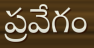
ప్రవేగం